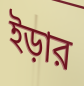
ইড়ার